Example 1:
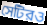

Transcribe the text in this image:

সেটিরও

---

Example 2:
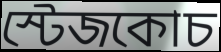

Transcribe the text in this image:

স্টেজকোচ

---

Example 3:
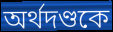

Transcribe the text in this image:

অর্থদণ্ডকে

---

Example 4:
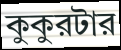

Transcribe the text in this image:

কুকুরটার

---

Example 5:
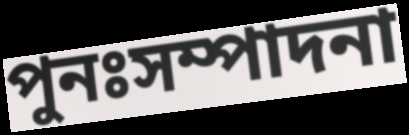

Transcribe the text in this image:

পুনঃসম্পাদনা